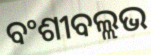
ବଂଶୀବଲ୍ଲଭ